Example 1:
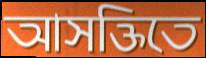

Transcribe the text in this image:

আসক্তিতে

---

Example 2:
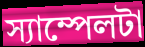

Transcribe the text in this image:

স্যাম্পেলটা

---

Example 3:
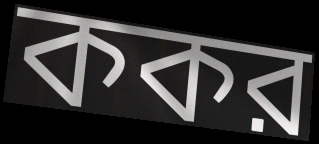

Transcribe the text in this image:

ককর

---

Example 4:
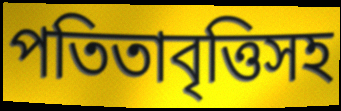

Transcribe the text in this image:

পতিতাবৃত্তিসহ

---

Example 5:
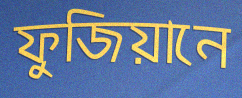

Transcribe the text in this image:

ফুজিয়ানে